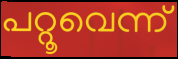
പറ്റൂവെന്ന്